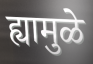
ह्यामुळे